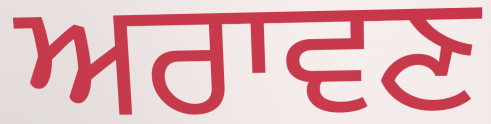
ਅਰਾਵਣ